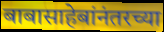
बाबासाहेबांनंतरच्या